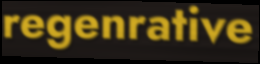
regenrative